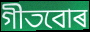
গীতবোৰ